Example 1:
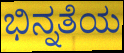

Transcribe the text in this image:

ಭಿನ್ನತೆಯ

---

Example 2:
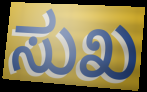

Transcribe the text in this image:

ಸುಖ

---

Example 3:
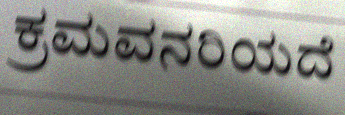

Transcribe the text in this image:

ಕ್ರಮವನರಿಯದೆ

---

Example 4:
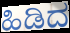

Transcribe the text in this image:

ಹಿಡಿದ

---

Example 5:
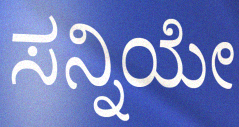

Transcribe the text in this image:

ಸನ್ನಿಯೇ